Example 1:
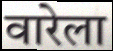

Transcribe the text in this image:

वारेला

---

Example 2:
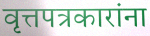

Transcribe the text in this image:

वृत्तपत्रकारांना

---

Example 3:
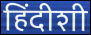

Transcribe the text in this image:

हिंदीशी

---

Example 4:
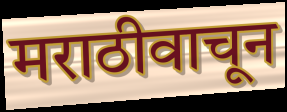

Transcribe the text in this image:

मराठीवाचून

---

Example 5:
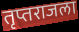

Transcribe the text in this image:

तृप्तराजला